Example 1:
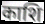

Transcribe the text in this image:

काशि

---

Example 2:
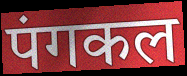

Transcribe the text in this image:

पंगकल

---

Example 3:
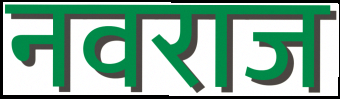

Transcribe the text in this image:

नवराज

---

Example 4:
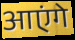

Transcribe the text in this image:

आएंगे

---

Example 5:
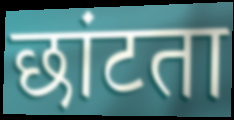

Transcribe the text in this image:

छांटता